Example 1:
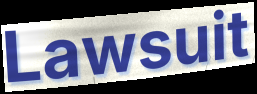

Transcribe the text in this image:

Lawsuit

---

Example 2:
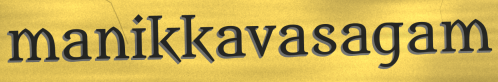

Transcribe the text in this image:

manikkavasagam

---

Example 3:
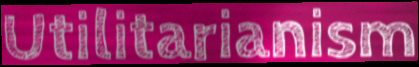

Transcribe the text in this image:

Utilitarianism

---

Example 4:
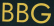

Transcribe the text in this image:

BBG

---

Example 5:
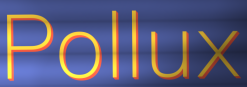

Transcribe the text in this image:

Pollux